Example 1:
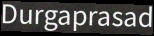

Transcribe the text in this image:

Durgaprasad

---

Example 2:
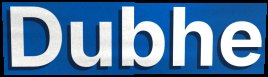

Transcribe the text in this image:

Dubhe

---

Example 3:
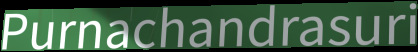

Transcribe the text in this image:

Purnachandrasuri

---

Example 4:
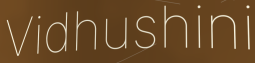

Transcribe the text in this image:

Vidhushini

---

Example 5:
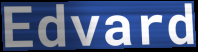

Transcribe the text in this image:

Edvard